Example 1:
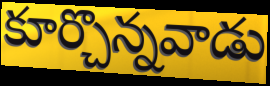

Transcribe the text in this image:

కూర్చొన్నవాడు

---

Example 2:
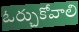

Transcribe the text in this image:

ఓర్చుకోవాలి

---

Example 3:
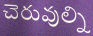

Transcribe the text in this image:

చెరువుల్ని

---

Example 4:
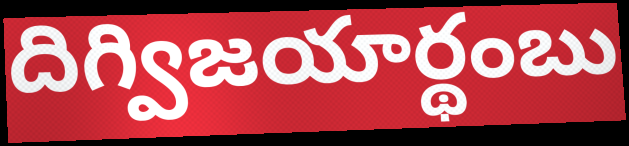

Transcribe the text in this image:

దిగ్విజయార్థంబు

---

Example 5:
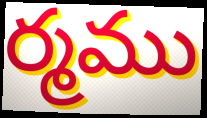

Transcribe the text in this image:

ర్మము